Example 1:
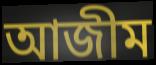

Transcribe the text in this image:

আজীম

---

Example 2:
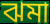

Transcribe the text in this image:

ঝমা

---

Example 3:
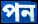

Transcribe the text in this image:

পন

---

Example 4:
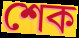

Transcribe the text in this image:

শেক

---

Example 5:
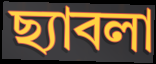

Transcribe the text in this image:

ছ্যাবলা